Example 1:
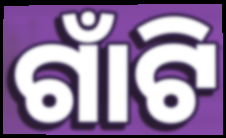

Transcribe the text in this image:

ଗାଁଟି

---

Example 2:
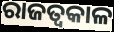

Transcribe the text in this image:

ରାଜତ୍ଵକାଳ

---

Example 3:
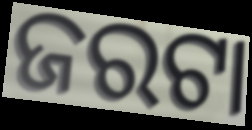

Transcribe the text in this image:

ଜରଟା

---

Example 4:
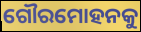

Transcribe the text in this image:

ଗୌରମୋହନକୁ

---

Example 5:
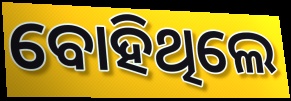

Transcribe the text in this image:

ବୋହିଥିଲେ